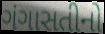
ગંગાસતીનો